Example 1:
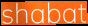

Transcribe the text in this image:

shabat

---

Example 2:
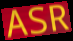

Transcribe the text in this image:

ASR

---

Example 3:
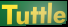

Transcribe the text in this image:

Tuttle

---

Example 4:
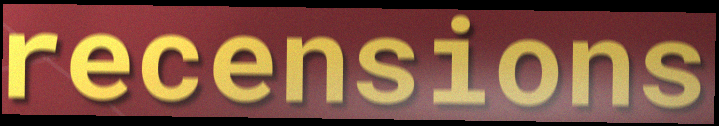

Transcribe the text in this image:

recensions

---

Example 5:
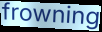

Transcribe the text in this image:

frowning